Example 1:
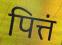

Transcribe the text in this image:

पित्तं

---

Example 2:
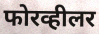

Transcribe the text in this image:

फोरव्हीलर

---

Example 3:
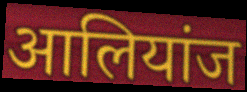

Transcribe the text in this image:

आलियांज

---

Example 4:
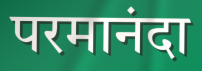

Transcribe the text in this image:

परमानंदा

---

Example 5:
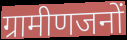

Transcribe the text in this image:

ग्रामीणजनों